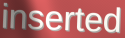
inserted